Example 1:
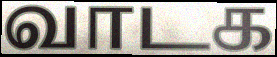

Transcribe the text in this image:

வாடக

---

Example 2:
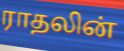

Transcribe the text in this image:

ராதலின்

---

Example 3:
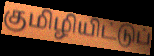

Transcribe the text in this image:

குமிழியிட்டுப்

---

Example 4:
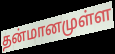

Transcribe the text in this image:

தன்மானமுள்ள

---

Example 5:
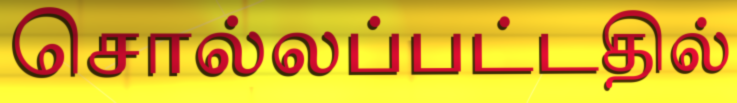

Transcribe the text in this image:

சொல்லப்பட்டதில்